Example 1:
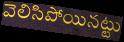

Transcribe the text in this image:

వెలిసిపోయినట్టు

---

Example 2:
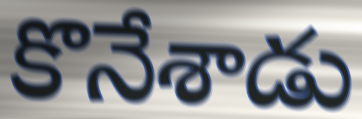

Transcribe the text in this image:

కొనేశాడు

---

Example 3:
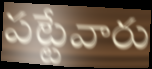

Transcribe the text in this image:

పట్టేవారు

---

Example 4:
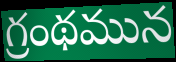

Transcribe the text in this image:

గ్రంథమున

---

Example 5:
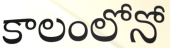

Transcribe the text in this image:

కాలంలోనో